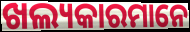
ଖଲ୍ୟକାରମାନେ